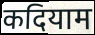
कदियाम